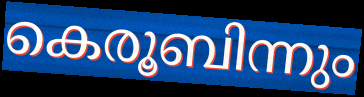
കെരൂബിന്നും